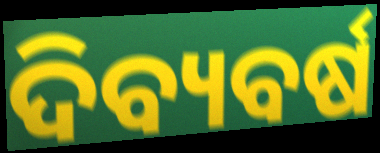
ଦିବ୍ୟବର୍ଷ